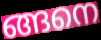
ങ്ങനെ